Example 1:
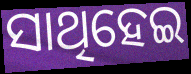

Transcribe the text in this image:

ସାଥିହେଇ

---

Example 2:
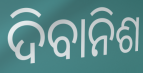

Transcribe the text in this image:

ଦିବାନିଶ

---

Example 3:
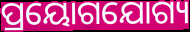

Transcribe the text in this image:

ପ୍ରୟୋଗଯୋଗ୍ୟ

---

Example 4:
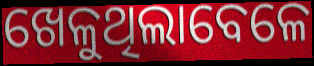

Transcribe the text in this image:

ଖେଳୁଥିଲାବେଳେ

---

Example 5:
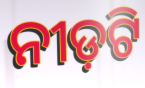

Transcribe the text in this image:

ନୀଡ଼ଟି